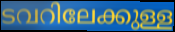
ടവറിലേക്കുള്ള